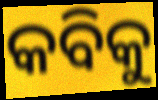
କବିକୁ